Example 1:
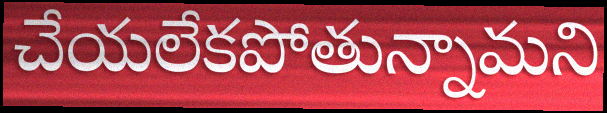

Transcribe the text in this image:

చేయలేకపోతున్నామని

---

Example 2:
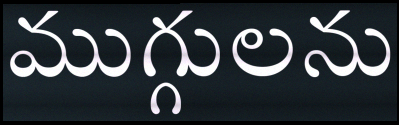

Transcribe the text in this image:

ముగ్గులను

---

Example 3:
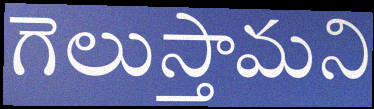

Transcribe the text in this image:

గెలుస్తామని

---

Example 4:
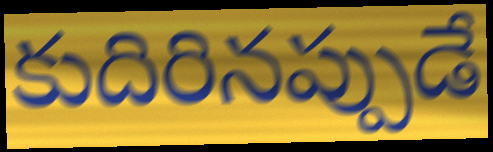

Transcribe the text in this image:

కుదిరినప్పుడే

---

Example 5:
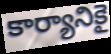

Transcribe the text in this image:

కార్యానికై